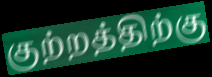
குற்றத்திற்கு